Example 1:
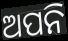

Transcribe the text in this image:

ଅପନି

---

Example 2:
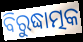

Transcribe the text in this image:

ବିରୁଦ୍ଧାତ୍ମକ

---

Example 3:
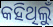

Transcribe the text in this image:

କହିଥିଲୁଁ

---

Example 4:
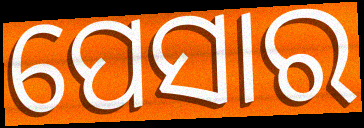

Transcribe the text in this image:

ପେସାର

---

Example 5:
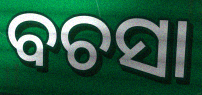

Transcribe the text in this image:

ବଚସା